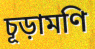
চূড়ামণি